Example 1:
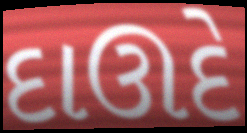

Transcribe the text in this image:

દાઊદે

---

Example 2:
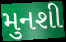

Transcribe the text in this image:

મુનશી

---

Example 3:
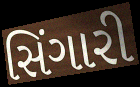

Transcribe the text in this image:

સિંગારી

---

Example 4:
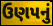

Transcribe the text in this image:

ઉણપનું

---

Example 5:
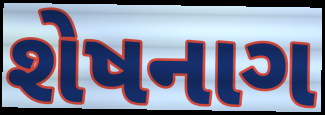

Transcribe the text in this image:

શેષનાગ